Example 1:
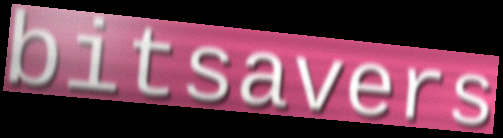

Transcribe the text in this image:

bitsavers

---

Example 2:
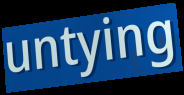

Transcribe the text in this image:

untying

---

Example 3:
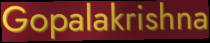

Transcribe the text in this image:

Gopalakrishna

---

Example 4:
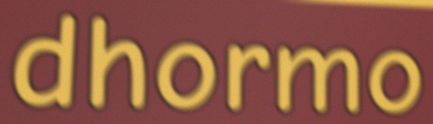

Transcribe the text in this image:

dhormo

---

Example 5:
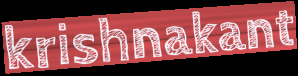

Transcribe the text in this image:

krishnakant